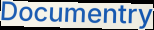
Documentry